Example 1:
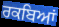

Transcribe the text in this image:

ਰਕਬਿਆਂ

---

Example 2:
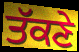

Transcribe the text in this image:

ਤੱਕਣੇ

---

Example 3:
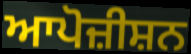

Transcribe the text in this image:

ਆਪੋਜ਼ੀਸ਼ਨ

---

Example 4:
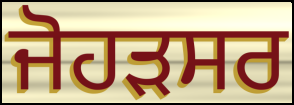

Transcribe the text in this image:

ਜੋਹੜਸਰ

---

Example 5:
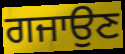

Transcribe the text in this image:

ਗਜਾਉਣ